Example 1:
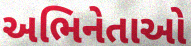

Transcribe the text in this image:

અભિનેતાઓ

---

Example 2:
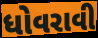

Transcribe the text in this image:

ધોવરાવી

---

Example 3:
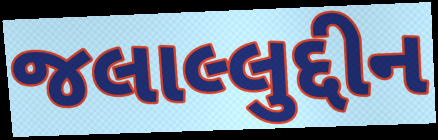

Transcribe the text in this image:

જલાલ્લુદ્દીન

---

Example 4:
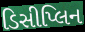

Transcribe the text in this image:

ડિસીપ્લિન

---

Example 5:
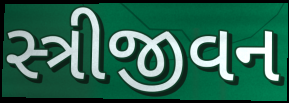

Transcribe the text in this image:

સ્ત્રીજીવન